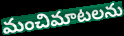
మంచిమాటలను